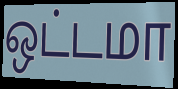
ஒட்டமா